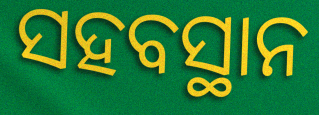
ସହବସ୍ଥାନ